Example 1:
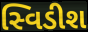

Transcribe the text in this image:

સ્વિડીશ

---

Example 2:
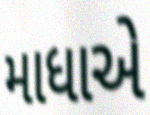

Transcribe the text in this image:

માધાએ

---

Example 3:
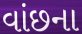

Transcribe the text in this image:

વાંછના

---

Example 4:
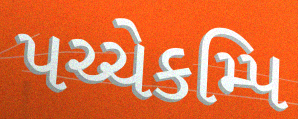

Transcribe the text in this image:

પચ્ચેકમ્પિ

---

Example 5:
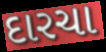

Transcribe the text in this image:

દારચા